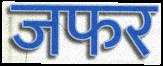
जफर